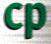
cp